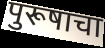
पुरूषाचा